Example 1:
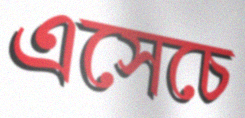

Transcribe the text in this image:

এসেচে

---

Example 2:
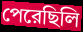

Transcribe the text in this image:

পেরেছিলি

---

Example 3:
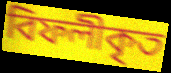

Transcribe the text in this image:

বিফলীকৃত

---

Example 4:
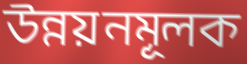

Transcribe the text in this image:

উন্নয়নমূলক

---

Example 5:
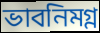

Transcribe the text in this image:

ভাবনিমগ্ন